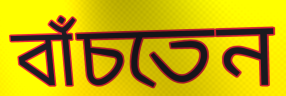
বাঁচতেন